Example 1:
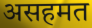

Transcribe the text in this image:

असहमत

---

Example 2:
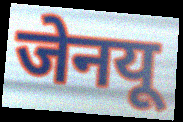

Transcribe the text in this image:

जेनयू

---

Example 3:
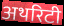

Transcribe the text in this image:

अथरिटी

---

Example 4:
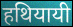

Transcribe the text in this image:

हथियायी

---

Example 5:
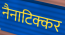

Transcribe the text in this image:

नैनाटिक्कर